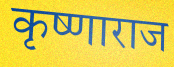
कृष्णाराज